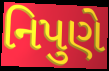
નિપુણે